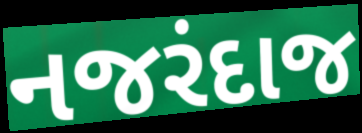
નજરંદાજ